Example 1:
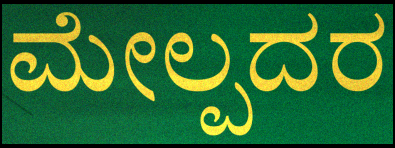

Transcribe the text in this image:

ಮೇಲ್ಪದರ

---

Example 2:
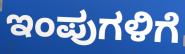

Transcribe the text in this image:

ಇಂಪುಗಳಿಗೆ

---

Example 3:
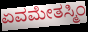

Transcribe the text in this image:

ಏವಮೇತಸ್ಮಿಂ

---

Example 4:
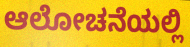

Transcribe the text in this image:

ಆಲೋಚನೆಯಲ್ಲಿ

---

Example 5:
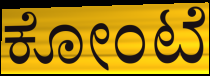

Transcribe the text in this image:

ಕೋಂಟೆ